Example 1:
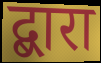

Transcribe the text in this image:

द्बारा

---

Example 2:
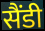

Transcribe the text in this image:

सैंडी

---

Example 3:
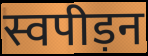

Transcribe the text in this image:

स्वपीड़न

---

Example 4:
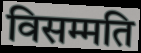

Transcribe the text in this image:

विसम्मति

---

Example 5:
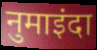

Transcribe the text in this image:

नुमाइंदा